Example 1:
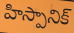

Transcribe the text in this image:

హిస్పానిక్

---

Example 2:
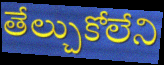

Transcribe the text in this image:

తేల్చుకోలేని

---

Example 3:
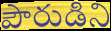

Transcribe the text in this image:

పౌరుడిని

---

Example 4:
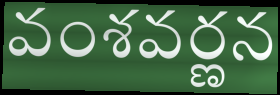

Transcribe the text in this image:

వంశవర్ణన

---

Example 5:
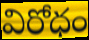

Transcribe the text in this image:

విరోధం